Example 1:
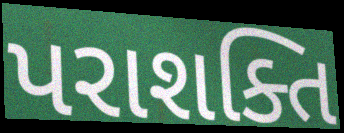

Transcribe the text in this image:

પરાશક્તિ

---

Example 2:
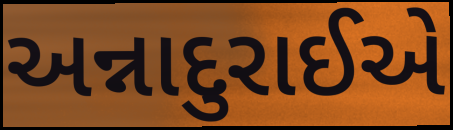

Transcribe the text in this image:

અન્નાદુરાઈએ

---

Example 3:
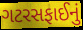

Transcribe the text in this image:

ગટરસફાઈનું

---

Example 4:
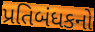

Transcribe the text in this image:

પ્રતિબંધકનો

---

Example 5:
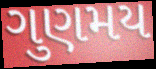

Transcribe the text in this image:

ગુણમય